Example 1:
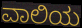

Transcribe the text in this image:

ವಾಲಿಯ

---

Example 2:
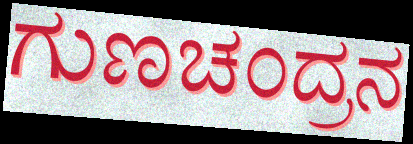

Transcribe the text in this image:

ಗುಣಚಂದ್ರನ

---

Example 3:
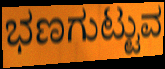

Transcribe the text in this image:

ಭಣಗುಟ್ಟುವ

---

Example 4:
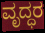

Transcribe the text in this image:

ವೃದ್ಧರ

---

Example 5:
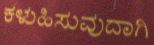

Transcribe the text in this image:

ಕಳುಹಿಸುವುದಾಗಿ